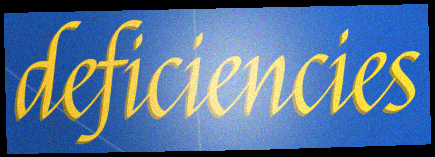
deficiencies